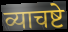
व्याचष्टे